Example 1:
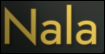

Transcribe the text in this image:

Nala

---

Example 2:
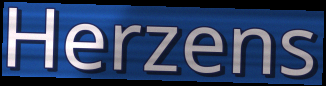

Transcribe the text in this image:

Herzens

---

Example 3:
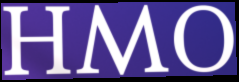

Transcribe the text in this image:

HMO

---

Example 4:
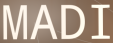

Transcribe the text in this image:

MADI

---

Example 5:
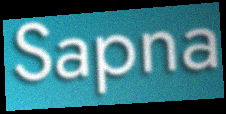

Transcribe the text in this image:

Sapna